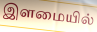
இளமையில்